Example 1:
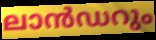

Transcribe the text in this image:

ലാൻഡറും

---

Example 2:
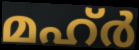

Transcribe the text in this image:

മഹ്ർ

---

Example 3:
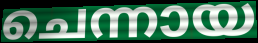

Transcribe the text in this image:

ചെന്നായ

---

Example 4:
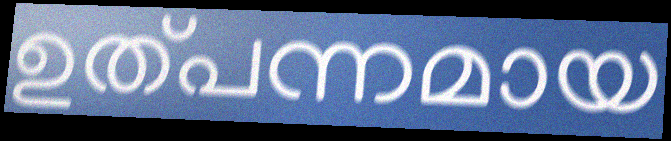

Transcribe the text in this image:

ഉത്പന്നമായ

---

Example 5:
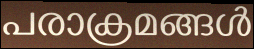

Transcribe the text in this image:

പരാക്രമങ്ങൾ